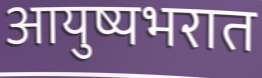
आयुष्यभरात